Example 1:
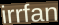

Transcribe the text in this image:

irrfan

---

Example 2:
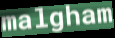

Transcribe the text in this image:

malgham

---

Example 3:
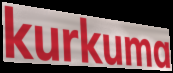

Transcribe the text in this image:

kurkuma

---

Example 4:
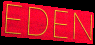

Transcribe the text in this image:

EDEN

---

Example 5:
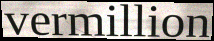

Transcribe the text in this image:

vermillion